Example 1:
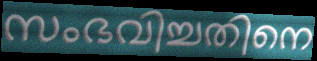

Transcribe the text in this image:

സംഭവിച്ചതിനെ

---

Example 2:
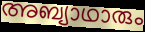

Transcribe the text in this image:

അബ്യാഥാരും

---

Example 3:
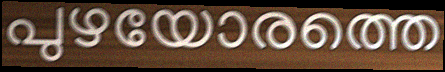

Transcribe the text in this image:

പുഴയോരത്തെ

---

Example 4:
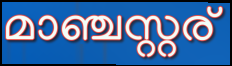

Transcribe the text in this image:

മാഞ്ചസ്റ്റര്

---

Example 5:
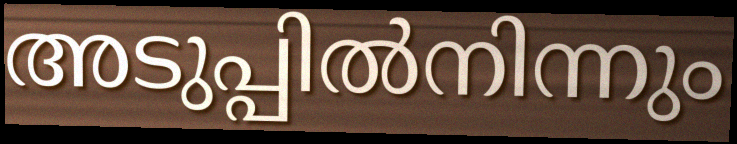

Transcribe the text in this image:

അടുപ്പിൽനിന്നും